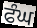
ਫੰਘ